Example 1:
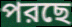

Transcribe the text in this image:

পরছে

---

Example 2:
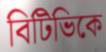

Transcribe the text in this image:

বিটিভিকে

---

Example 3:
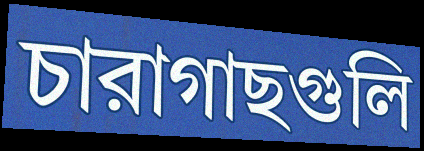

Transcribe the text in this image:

চারাগাছগুলি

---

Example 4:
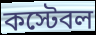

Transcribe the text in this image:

কস্টেবল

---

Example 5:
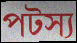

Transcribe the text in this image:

পটস্য